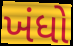
ખંધો